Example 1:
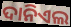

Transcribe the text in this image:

ଦାନିଏଲ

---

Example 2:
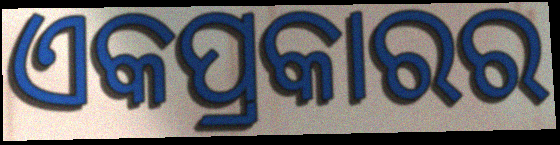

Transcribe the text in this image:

ଏକପ୍ରକାରର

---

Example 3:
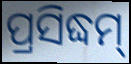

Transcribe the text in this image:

ପ୍ରସିଦ୍ଧମ୍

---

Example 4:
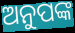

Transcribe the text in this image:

ଅନୁପଙ୍କ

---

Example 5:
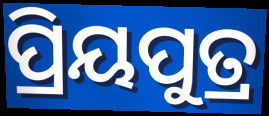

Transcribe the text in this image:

ପ୍ରିୟପୁତ୍ର